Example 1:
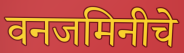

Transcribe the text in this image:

वनजमिनीचे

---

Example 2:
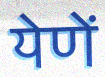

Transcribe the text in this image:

येणें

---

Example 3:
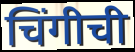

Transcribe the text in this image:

चिंगीची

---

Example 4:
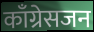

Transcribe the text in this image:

काँग्रेसजन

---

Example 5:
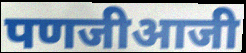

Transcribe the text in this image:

पणजीआजी